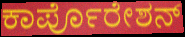
ಕಾರ್ಪೊರೇಶನ್